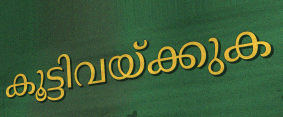
കൂട്ടിവയ്ക്കുക